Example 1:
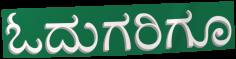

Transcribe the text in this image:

ಓದುಗರಿಗೂ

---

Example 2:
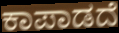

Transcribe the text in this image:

ಕಾಪಾಡದೆ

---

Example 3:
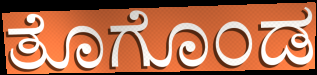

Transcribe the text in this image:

ತೊಗೊಂಡ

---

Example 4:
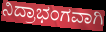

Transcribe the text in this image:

ನಿದ್ರಾಭಂಗವಾಗಿ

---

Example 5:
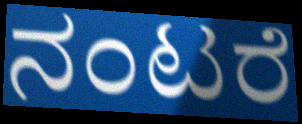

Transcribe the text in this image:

ನಂಟರೆ